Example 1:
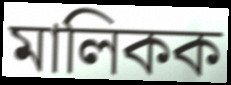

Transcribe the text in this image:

মালিকক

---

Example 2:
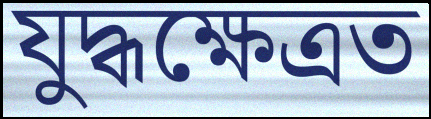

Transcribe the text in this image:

যুদ্ধক্ষেত্ৰত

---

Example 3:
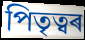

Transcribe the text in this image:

পিতৃত্বৰ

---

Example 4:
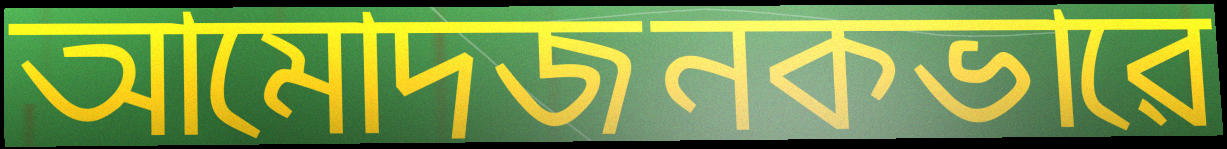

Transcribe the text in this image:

আমোদজনকভাৱে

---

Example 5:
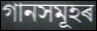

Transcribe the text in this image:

গানসমূহৰ